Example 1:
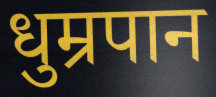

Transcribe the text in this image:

धुम्रपान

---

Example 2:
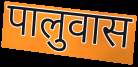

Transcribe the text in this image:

पालुवास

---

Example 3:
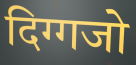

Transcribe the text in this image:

दिग्गजो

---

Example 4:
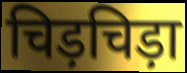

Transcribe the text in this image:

चिड़चिड़ा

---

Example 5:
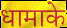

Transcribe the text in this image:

धामाके